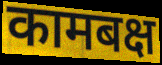
कामबक्ष